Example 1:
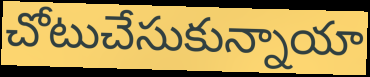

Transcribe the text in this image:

చోటుచేసుకున్నాయా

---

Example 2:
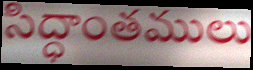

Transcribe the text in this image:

సిద్ధాంతములు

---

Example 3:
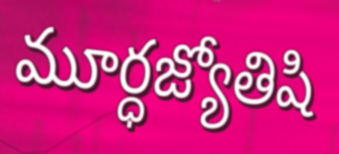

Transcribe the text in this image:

మూర్ధజ్యోతిషి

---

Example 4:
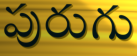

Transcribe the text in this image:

పురుగు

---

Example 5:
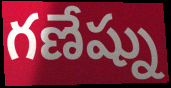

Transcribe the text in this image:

గణేష్ను